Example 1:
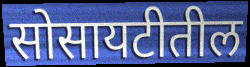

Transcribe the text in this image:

सोसायटीतील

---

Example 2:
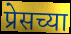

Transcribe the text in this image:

प्रेसच्या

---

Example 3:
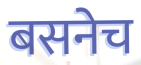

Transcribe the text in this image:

बसनेच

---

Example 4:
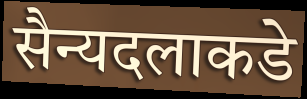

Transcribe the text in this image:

सैन्यदलाकडे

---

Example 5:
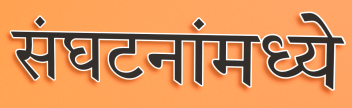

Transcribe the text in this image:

संघटनांमध्ये